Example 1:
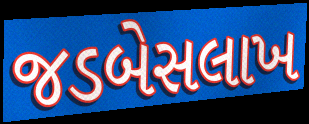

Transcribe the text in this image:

જડબેસલાખ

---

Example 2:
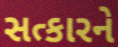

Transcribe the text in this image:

સત્કારને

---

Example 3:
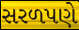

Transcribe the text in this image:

સરળપણે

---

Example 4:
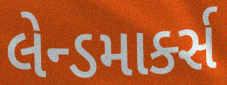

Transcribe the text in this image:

લેન્ડમાર્ક્સ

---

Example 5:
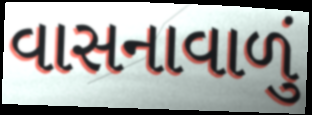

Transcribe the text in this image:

વાસનાવાળું